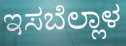
ಇಸಬೆಲ್ಲಾಳ